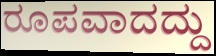
ರೂಪವಾದದ್ದು